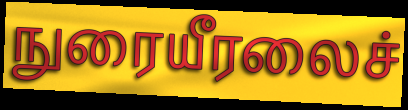
நுரையீரலைச்